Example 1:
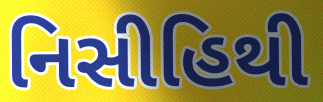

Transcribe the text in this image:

નિસીહિથી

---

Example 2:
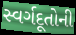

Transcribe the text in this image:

સ્વર્ગદૂતોની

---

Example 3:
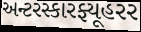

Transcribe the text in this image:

અન્ટરસ્કારફ્યૂહરર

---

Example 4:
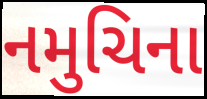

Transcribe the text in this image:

નમુચિના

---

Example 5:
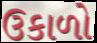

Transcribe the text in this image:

ઉકાળો